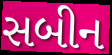
સબીન